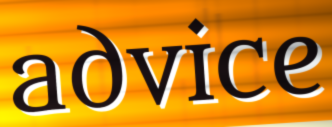
advice